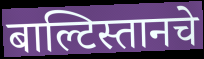
बाल्टिस्तानचे